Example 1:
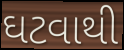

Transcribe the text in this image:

ઘટવાથી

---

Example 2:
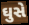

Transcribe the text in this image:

ઘુસે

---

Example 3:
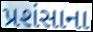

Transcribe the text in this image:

પ્રશંસાના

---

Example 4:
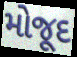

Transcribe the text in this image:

મોજૂદ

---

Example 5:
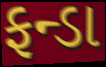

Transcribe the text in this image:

ફન્ડા